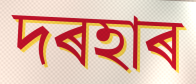
দৰহাৰ